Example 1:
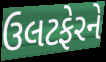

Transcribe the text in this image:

ઉલટફેરને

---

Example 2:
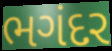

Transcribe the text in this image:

ભગંદર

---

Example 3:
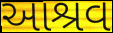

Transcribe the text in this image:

આશ્રવ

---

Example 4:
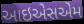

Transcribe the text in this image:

આઇએસએમ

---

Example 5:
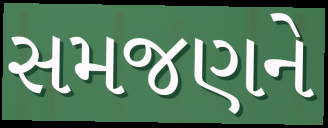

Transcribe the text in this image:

સમજણને